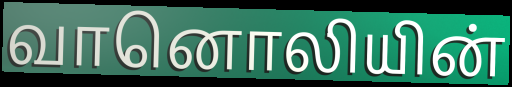
வானொலியின்